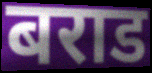
बराड